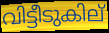
വിട്ടീടുകില്